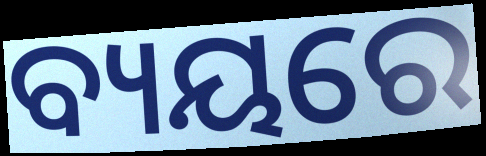
ବ୍ୟୟରେ